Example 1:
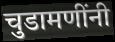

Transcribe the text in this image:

चुडामणींनी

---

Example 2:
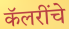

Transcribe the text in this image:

कॅलरींचे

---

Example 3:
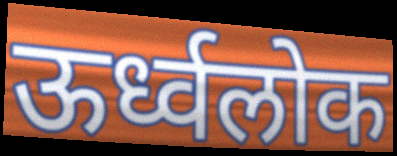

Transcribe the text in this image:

ऊर्ध्वलोक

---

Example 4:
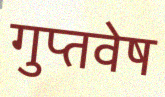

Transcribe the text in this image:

गुप्तवेष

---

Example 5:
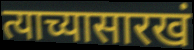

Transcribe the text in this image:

त्याच्यासारखं